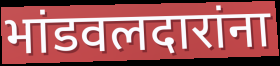
भांडवलदारांना